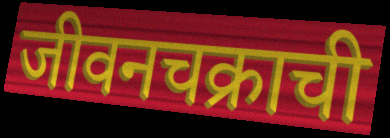
जीवनचक्राची